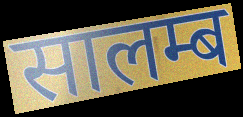
सालम्ब